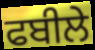
ਫਬੀਲੇ